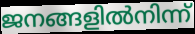
ജനങ്ങളിൽനിന്ന്